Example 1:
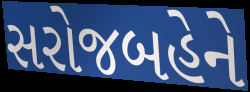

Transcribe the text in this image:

સરોજબહેને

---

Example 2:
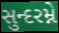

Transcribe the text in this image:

સુન્દરમ્ને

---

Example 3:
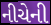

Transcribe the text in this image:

નીચેની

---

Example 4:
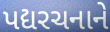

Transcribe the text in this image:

પદ્યરચનાને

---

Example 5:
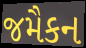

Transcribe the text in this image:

જમૈકન